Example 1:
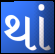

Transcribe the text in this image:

થાં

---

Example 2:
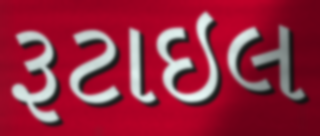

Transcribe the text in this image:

રૂટાઇલ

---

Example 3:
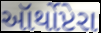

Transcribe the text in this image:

ઑર્થોપ્ટેરા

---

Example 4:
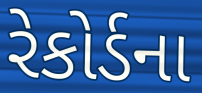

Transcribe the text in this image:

રેકોર્ડના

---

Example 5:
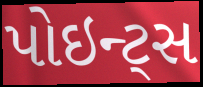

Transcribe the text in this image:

પોઇન્ટ્સ